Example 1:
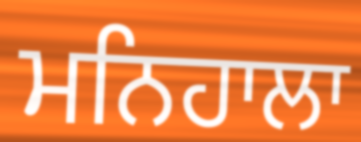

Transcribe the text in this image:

ਮਨਿਹਾਲਾ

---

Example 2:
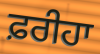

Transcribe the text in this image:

ਫ਼ਰੀਹਾ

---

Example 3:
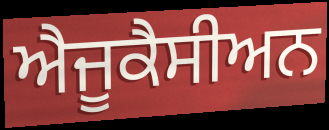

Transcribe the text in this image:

ਐਜੂਕੈਸੀਅਨ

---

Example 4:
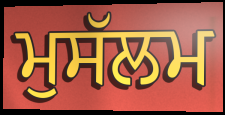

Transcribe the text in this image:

ਮੁਸੱਲਮ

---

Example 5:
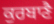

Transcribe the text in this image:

ਕੁਰਬਾਣੈ